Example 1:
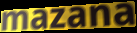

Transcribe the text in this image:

mazana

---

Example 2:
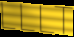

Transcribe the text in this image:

LLLT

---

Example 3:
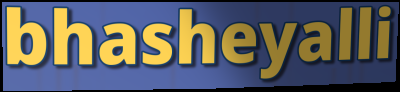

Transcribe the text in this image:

bhasheyalli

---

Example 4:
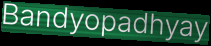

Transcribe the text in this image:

Bandyopadhyay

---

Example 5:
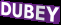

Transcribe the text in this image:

DUBEY